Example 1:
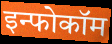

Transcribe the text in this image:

इन्फोकॉम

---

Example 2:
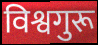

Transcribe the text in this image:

विश्वगुरू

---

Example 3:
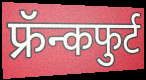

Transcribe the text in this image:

फ्रॅन्कफुर्ट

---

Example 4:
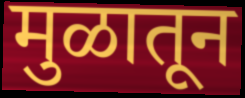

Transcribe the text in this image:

मुळातून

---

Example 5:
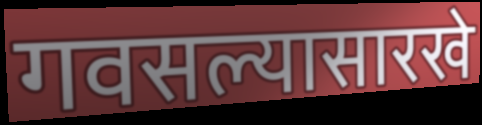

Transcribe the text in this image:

गवसल्यासारखे